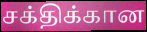
சக்திக்கான